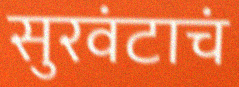
सुरवंटाचं